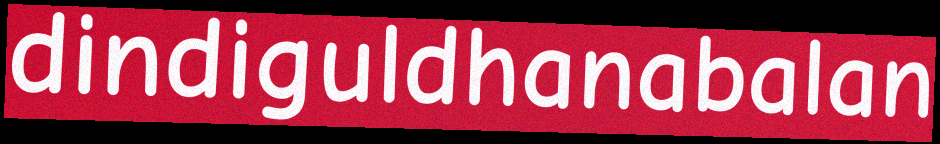
dindiguldhanabalan